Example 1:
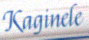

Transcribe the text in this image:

Kaginele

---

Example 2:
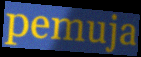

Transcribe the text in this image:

pemuja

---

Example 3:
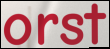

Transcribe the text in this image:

orst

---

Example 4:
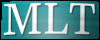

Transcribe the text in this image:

MLT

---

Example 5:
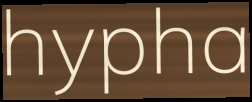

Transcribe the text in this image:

hypha